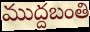
ముద్దబంతి